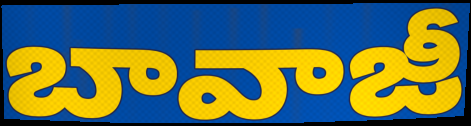
బావాజీ